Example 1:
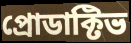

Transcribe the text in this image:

প্রোডাক্টিভ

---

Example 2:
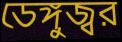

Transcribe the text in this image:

ডেঙ্গুজ্বর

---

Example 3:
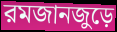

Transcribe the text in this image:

রমজানজুড়ে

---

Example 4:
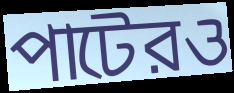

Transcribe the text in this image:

পাটেরও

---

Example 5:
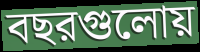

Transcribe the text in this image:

বছরগুলোয়